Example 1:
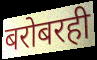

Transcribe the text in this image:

बरोबरही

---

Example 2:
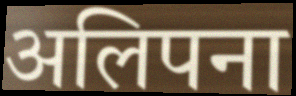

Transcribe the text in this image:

अलिपना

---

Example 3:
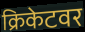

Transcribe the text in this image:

क्रिकेटवर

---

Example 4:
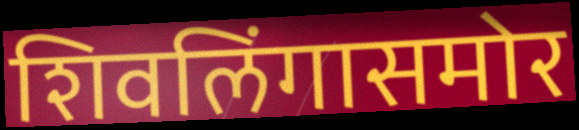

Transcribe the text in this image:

शिवलिंगासमोर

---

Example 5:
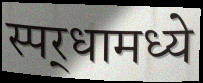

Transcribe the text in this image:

स्पर्धामध्ये